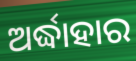
ଅର୍ଦ୍ଧାହାର